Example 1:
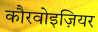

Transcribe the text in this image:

कौरवोइज़ियर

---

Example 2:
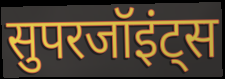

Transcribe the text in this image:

सुपरजॉइंट्स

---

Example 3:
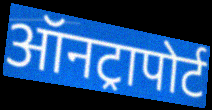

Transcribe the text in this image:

ऑनट्रापोर्ट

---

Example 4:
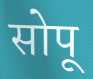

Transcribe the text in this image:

सोपू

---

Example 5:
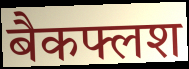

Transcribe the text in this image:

बैकफ्लश